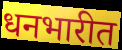
धनभारीत